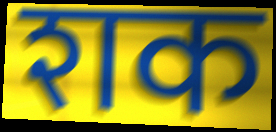
शक